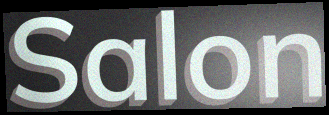
Salon